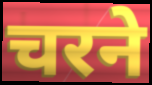
चरने